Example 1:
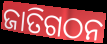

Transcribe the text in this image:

ଜାତିଗଠନ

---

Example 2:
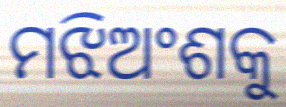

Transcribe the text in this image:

ମଝିଅଂଶକୁ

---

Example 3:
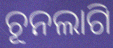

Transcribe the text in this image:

ଚୂନଲାଗି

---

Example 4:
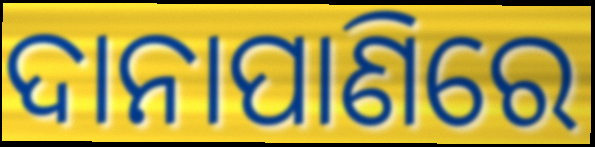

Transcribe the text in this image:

ଦାନାପାଣିରେ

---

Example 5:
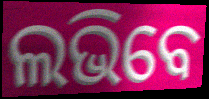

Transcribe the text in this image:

ଲଭିବେ